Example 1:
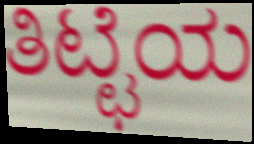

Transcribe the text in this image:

ತಿಟ್ಟೆಯ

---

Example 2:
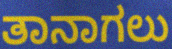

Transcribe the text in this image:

ತಾನಾಗಲು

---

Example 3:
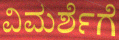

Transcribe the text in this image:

ವಿಮರ್ಶೆಗೆ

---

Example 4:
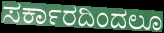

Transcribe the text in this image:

ಸರ್ಕಾರದಿಂದಲೂ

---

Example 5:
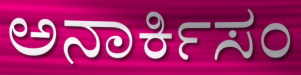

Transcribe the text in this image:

ಅನಾರ್ಕಿಸಂ